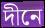
দীনে